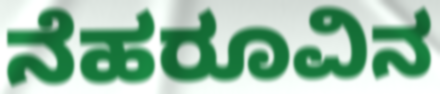
ನೆಹರೂವಿನ